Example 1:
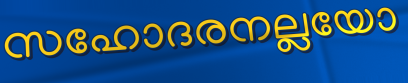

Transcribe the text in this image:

സഹോദരനല്ലയോ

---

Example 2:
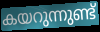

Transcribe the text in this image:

കയറുന്നുണ്ട്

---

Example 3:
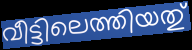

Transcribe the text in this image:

വീട്ടിലെത്തിയതു്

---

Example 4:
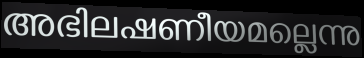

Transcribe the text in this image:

അഭിലഷണീയമല്ലെന്നു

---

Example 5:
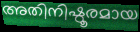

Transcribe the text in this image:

അതിനിഷ്ഠൂരമായ